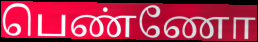
பெண்ணோ